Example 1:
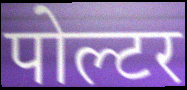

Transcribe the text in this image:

पोल्टर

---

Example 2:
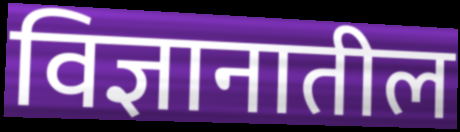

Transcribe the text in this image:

विज्ञानातील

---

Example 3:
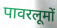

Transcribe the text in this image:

पावरलूमों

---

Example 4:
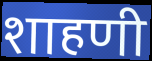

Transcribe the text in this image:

शाहणी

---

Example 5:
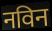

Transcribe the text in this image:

नविन